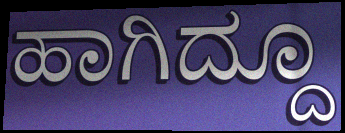
ಹಾಗಿದ್ದೂ